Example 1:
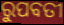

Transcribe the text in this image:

ରୁପବତୀ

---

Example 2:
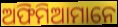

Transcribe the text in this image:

ଅଫିମିଆମାନେ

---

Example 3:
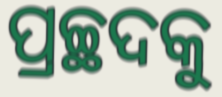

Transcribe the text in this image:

ପ୍ରଚ୍ଛଦକୁ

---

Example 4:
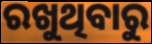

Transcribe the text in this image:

ରଖୁଥିବାରୁ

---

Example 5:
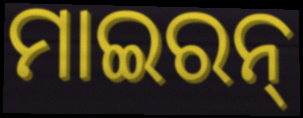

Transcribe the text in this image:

ମାଇରନ୍